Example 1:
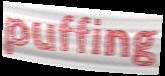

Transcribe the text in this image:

puffing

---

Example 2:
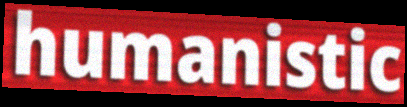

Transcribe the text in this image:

humanistic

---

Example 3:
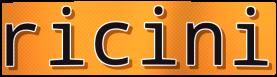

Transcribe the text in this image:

ricini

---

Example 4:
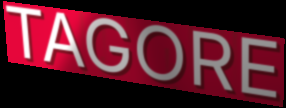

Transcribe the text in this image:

TAGORE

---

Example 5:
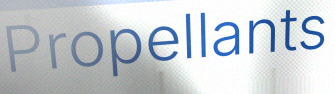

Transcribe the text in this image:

Propellants